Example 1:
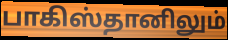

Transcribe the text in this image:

பாகிஸ்தானிலும்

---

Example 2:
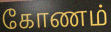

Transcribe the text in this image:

கோணம்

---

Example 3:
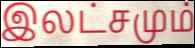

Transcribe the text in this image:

இலட்சமும்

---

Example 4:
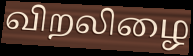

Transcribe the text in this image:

விறலிழை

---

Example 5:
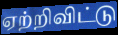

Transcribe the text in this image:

ஏற்றிவிட்டு